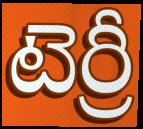
టెర్రీ